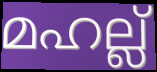
മഹല്ല്